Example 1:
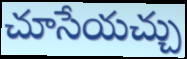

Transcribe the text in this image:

చూసేయచ్చు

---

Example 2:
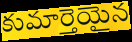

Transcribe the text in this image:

కుమార్తెయైన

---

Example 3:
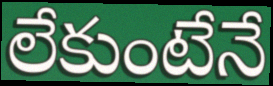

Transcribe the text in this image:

లేకుంటేనే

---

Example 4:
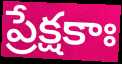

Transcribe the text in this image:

ప్రేక్షకాః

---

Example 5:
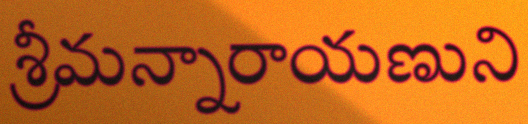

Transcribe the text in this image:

శ్రీమన్నారాయణుని